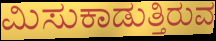
ಮಿಸುಕಾಡುತ್ತಿರುವ